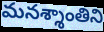
మనశ్శాంతిని